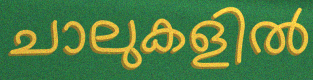
ചാലുകളിൽ